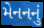
મેનનનું